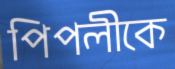
পিপলীকে